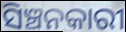
ସିଞ୍ଚନକାରୀ